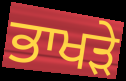
ਭਾਖੜੇ